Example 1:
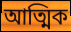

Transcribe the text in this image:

আত্মিক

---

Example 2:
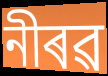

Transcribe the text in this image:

নীৰৱ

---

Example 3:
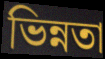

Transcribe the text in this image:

ভিন্নতা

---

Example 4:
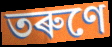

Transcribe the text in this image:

তৰুণে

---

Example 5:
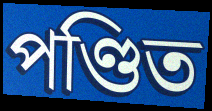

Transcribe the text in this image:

পণ্ডিত